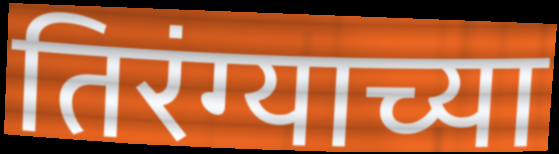
तिरंग्याच्या